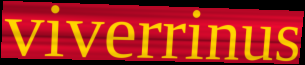
viverrinus